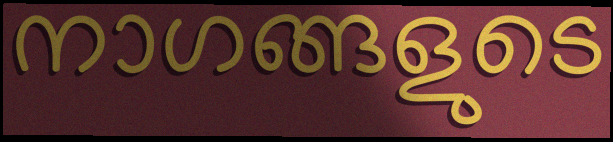
നാഗങ്ങളുടെ